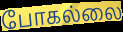
போகல்லை